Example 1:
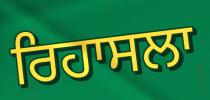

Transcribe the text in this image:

ਰਿਹਾਸਲਾ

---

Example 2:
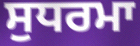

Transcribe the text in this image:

ਸੁਧਰਮਾ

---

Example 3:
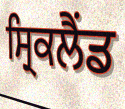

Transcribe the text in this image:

ਸ੍ਰਿਕਲੈਂਡ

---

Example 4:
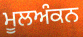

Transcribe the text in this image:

ਮੂਲਅੰਕਨ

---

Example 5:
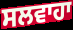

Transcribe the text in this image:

ਸਲਵਾਹਾ